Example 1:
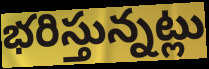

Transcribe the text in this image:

భరిస్తున్నట్లు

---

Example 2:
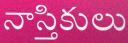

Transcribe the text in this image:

నాస్తికులు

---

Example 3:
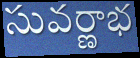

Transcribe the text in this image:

సువర్ణాభ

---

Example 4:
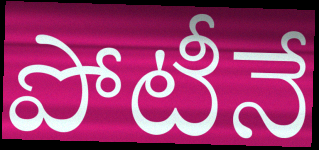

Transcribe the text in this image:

పోటీనే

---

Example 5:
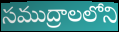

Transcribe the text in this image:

సముద్రాలలోని